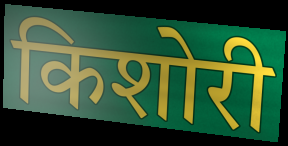
किशोरी